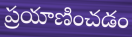
ప్రయాణించడం